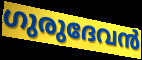
ഗുരുദേവൻ